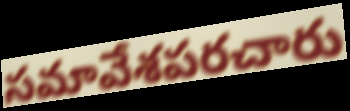
సమావేశపరచారు